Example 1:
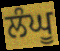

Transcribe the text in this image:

ਲੰਘੂ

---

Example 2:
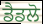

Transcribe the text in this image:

ਡੈਡਲੋ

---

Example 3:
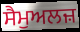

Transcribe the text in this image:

ਸੈਮੁਅਲਜ਼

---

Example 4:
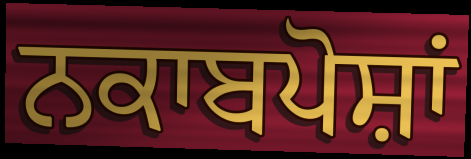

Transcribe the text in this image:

ਨਕਾਬਪੋਸ਼ਾਂ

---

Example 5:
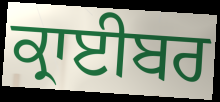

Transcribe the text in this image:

ਕ੍ਰਾਈਬਰ